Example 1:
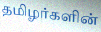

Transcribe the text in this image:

தமிழர்களின்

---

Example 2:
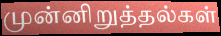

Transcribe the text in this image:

முன்னிறுத்தல்கள்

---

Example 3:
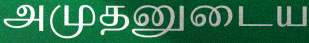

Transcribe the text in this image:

அமுதனுடைய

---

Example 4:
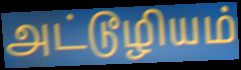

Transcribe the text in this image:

அட்டூழியம்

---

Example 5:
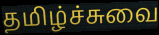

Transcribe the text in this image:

தமிழ்ச்சுவை